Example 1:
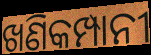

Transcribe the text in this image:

ଖଣିକମ୍ପାନୀ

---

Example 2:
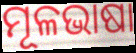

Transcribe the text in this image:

ମୂଳଭାଷା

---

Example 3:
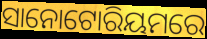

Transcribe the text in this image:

ସାନୋଟୋରିୟମରେ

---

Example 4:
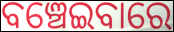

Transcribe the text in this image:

ବଞ୍ଚେଇବାରେ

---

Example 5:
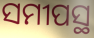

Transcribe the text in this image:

ସମୀପସ୍ଥ